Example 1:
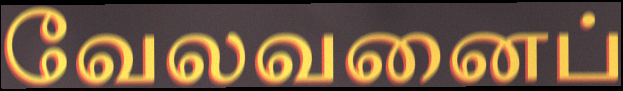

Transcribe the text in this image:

வேலவனைப்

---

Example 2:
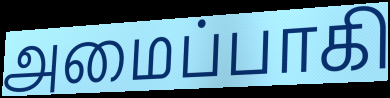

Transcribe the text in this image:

அமைப்பாகி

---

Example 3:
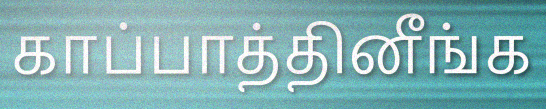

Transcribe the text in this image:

காப்பாத்தினீங்க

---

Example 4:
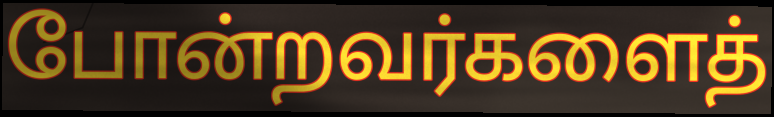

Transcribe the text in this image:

போன்றவர்களைத்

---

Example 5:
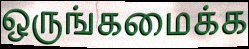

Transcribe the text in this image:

ஒருங்கமைக்க